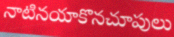
నాటినయాకొనచూపులు